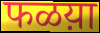
फळय़ा